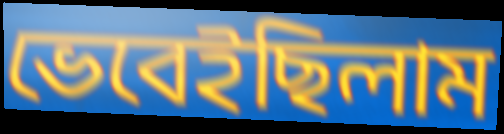
ভেবেইছিলাম